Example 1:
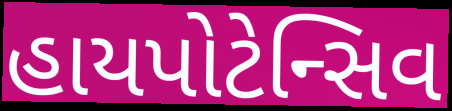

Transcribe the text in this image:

હાયપોટેન્સિવ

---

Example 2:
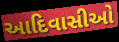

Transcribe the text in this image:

આદિવાસીઓ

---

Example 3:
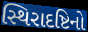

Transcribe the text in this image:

સ્થિરાદષ્ટિનો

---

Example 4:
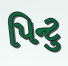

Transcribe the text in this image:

પિન્ટુ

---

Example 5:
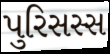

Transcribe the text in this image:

પુરિસસ્સ